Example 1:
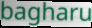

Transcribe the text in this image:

bagharu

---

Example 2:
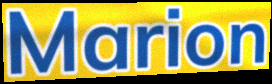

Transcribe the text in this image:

Marion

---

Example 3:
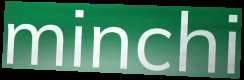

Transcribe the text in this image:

minchi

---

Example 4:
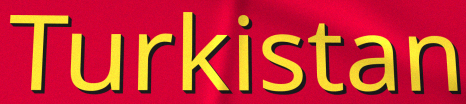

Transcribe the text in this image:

Turkistan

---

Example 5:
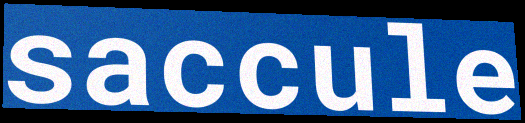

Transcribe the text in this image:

saccule